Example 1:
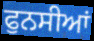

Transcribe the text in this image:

ਫੁਨਸੀਆਂ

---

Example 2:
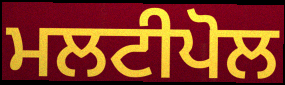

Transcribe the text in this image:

ਮਲਟੀਪੋਲ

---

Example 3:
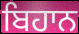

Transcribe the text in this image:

ਬਿਹਾਨ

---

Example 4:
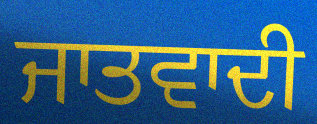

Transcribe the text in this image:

ਜਾਤਵਾਦੀ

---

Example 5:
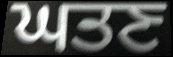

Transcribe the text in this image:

ਘਤਣ